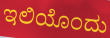
ಇಲಿಯೊಂದು